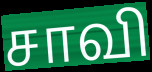
சாவி